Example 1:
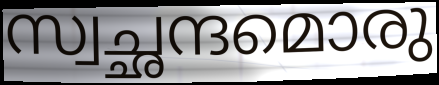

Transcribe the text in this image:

സ്വച്ഛന്ദമൊരു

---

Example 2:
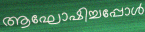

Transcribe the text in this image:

ആഘോഷിച്ചപ്പോൾ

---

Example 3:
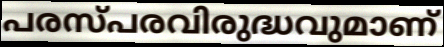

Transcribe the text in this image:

പരസ്പരവിരുദ്ധവുമാണ്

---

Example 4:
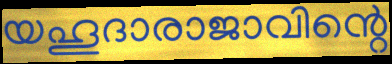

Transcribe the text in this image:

യഹൂദാരാജാവിന്റെ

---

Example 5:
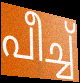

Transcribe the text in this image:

പീച്ച്